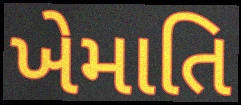
ખેમાતિ